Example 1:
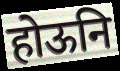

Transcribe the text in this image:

होऊनि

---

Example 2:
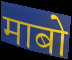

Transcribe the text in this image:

माबो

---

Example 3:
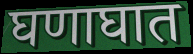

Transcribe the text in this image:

घणाघात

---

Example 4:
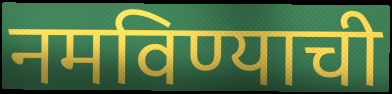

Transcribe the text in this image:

नमविण्याची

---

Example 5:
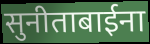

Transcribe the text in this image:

सुनीताबाईना